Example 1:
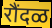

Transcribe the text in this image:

रौंदळ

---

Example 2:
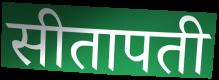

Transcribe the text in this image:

सीतापती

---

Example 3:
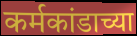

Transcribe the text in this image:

कर्मकांडाच्या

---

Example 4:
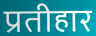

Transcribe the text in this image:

प्रतीहार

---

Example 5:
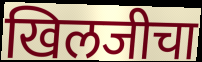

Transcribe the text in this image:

खिलजीचा